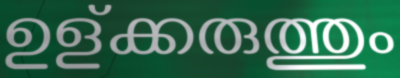
ഉള്ക്കരുത്തും